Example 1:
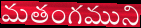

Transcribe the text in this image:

మతంగముని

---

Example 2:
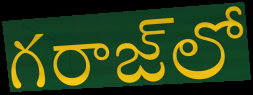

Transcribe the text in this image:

గరాజ్‌లో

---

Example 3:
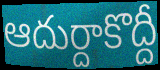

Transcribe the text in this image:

ఆదుర్దాకొద్దీ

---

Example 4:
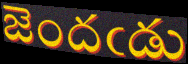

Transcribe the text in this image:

జెందఁడు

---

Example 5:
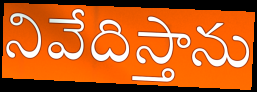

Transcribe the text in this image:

నివేదిస్తాను